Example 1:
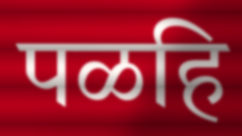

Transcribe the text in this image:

पळहि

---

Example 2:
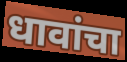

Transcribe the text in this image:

धावांचा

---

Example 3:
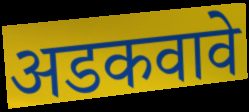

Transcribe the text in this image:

अडकवावे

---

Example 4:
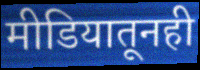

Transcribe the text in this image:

मीडियातूनही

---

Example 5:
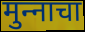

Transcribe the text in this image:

मुन्नाचा